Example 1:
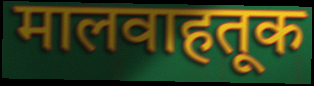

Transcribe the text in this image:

मालवाहतूक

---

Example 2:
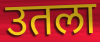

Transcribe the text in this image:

उतला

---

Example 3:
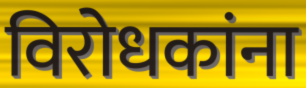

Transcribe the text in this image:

विरोधकांना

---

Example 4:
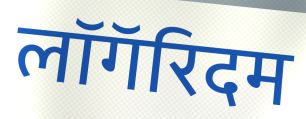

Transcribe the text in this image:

लॉगॅरिदम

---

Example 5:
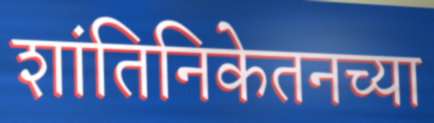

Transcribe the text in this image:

शांतिनिकेतनच्या